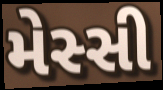
મેસ્સી